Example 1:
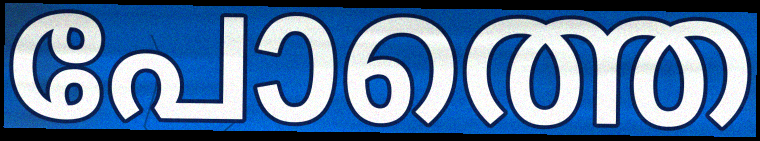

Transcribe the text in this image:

പോത്തെ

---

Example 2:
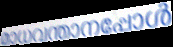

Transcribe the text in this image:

മാധവന്താനപ്പോൾ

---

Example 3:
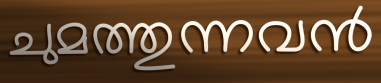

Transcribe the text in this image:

ചുമത്തുന്നവൻ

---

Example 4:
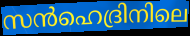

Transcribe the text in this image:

സൻഹെദ്രിനിലെ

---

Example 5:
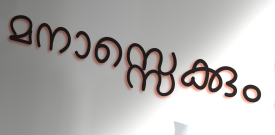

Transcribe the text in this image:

മനാസ്സെക്കും